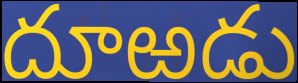
దూఱడు